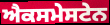
ਐਕਸਮੇਸਟੇਨ